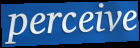
perceive